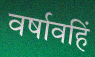
वर्षावहिं